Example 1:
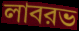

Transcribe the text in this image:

লাবরভ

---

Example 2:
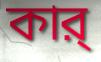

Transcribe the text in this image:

কার্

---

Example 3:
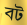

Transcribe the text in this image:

বট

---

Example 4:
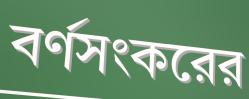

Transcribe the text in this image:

বর্ণসংকরের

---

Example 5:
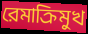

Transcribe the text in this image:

রেমাক্রিমুখ